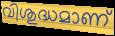
വിശുദ്ധമാണ്